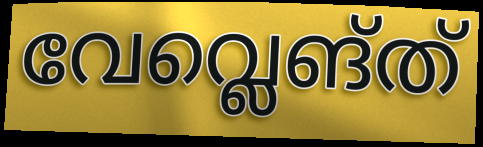
വേവ്ലെങ്ത്